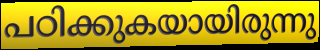
പഠിക്കുകയായിരുന്നു